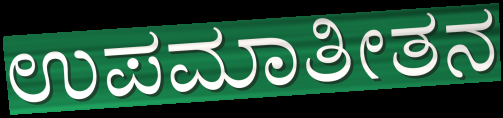
ಉಪಮಾತೀತನ